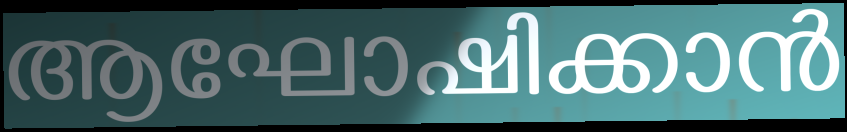
ആഘോഷിക്കാൻ